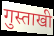
गुस्ताखी